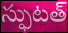
స్ఫుటత్